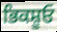
ਭਿਕਸ਼ੂਓ